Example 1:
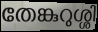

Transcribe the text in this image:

തേങ്കുറുശ്ശി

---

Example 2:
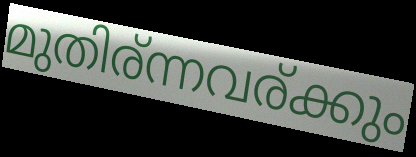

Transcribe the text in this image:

മുതിര്ന്നവര്ക്കും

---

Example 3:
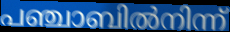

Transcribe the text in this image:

പഞ്ചാബിൽനിന്ന്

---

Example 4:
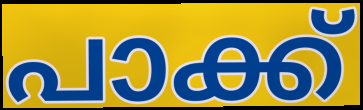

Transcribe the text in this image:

പാക്ക്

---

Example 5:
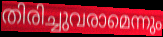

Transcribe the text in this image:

തിരിച്ചുവരാമെന്നും